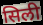
सिली